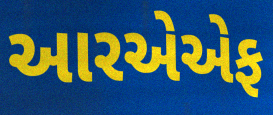
આરએએફ